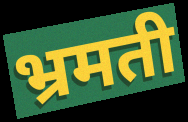
भ्रमती